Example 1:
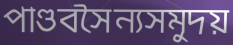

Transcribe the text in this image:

পাণ্ডবসৈন্যসমুদয়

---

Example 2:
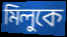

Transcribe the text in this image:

মিলুকে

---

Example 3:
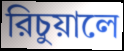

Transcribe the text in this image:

রিচুয়ালে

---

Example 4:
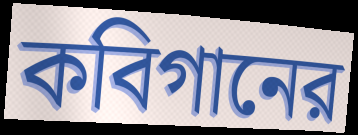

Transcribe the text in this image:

কবিগানের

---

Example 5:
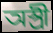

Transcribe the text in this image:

অস্ত্রী